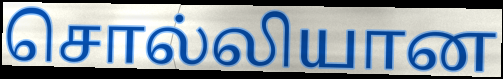
சொல்லியான